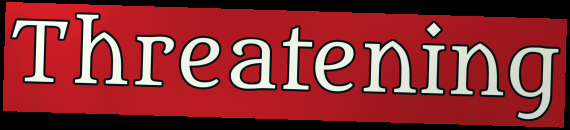
Threatening